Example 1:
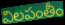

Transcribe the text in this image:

విలపంతీం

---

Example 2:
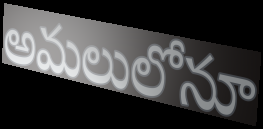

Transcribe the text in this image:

అమలులోనూ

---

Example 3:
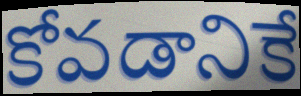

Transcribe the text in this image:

కోవడానికే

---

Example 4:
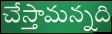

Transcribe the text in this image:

చేస్తామన్నది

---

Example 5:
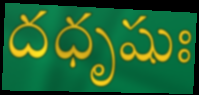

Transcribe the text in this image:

దధృషుః